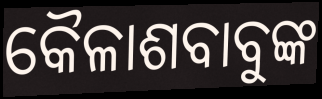
କୈଳାଶବାବୁଙ୍କ